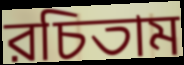
রচিতাম